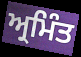
ਅ੍ਰਮਿੰਤ